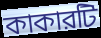
কাকারটি